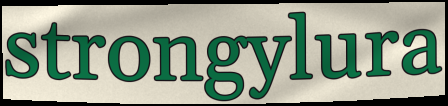
strongylura